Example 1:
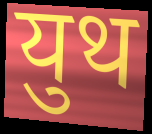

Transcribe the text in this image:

युथ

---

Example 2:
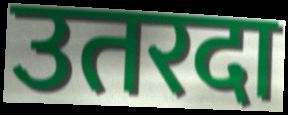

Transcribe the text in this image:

उतरदा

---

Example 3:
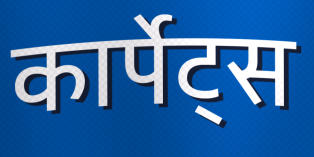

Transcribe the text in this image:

कार्पेट्स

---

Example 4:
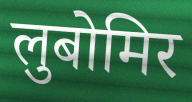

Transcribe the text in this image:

लुबोमिर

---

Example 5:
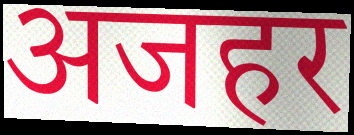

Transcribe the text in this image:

अजहर